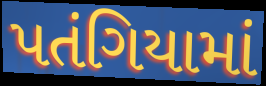
પતંગિયામાં